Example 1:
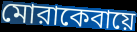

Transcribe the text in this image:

মোরাকেবায়ে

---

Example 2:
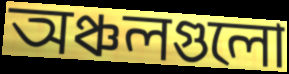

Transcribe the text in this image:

অঞ্চলগুলো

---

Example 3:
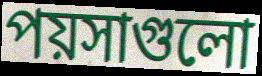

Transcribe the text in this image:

পয়সাগুলো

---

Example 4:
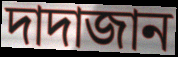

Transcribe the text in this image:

দাদাজান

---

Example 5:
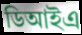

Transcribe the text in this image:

ডিআইএ